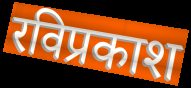
रविप्रकाश